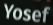
Yosef